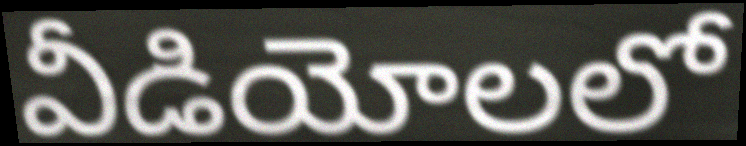
వీడియోలలో